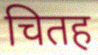
चितह